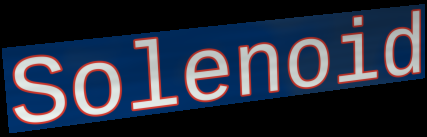
Solenoid